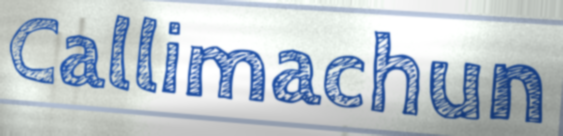
Callimachun